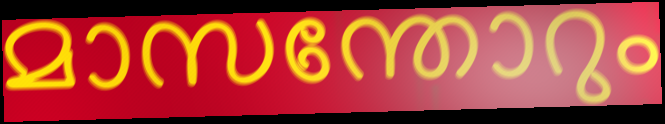
മാസന്തോറും